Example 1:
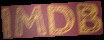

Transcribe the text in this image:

IMDB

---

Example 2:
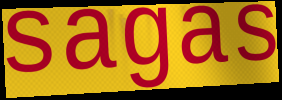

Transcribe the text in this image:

sagas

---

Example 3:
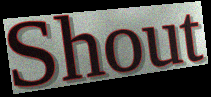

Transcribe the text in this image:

Shout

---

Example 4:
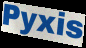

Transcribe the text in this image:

Pyxis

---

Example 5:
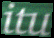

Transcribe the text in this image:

itu